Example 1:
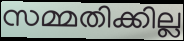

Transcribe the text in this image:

സമ്മതിക്കില്ല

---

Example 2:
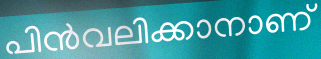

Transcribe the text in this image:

പിൻവലിക്കാനാണ്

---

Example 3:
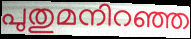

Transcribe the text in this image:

പുതുമനിറഞ്ഞ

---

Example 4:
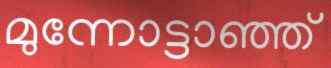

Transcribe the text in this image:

മുന്നോട്ടാഞ്ഞ്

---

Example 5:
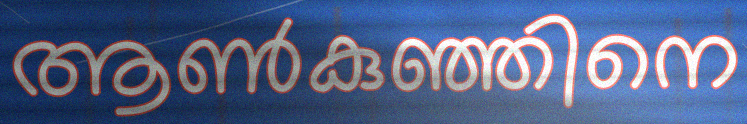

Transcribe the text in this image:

ആൺകുഞ്ഞിനെ